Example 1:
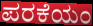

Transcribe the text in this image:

ಪರಕೆಯಂ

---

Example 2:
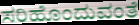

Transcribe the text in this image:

ಸರಿಹೊಂದುವಂತೆ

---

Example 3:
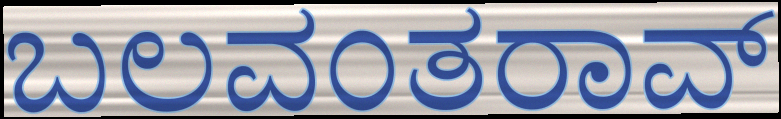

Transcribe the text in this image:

ಬಲವಂತರಾವ್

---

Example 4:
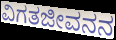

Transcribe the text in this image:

ವಿಗತಜೀವನನ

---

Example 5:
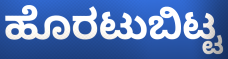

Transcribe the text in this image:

ಹೊರಟುಬಿಟ್ಟ